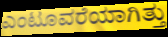
ಎಂಟೂವರೆಯಾಗಿತ್ತು